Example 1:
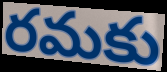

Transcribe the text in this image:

రమకు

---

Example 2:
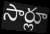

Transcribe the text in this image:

సార్లూ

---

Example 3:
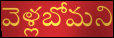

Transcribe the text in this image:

వెళ్లబోమని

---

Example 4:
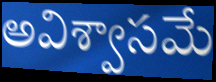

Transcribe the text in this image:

అవిశ్వాసమే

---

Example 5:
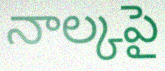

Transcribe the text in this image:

నాల్కపై